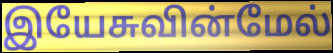
இயேசுவின்மேல்